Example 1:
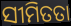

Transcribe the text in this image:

ସୀମିତତା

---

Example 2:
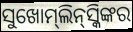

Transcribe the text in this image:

ସୁଖୋମ୍‌ଲିନ୍‌ସ୍କିଙ୍କର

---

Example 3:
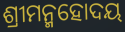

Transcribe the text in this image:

ଶ୍ରୀମନ୍ମହୋଦୟ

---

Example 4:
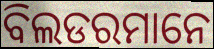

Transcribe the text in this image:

ବିଲଡରମାନେ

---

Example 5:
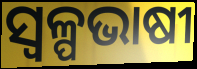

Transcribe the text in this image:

ସ୍ୱଳ୍ପଭାଷୀ